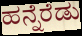
ಹನ್ನೆರೆಡು